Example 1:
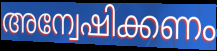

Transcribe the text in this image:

അന്വേഷിക്കണം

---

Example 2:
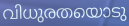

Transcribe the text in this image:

വിധുരതയൊടു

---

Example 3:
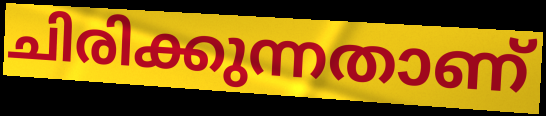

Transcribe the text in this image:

ചിരിക്കുന്നതാണ്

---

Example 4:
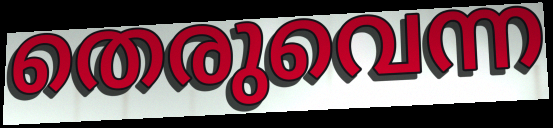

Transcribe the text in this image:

തെരുവെന്ന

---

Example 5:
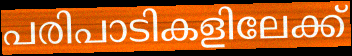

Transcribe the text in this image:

പരിപാടികളിലേക്ക്